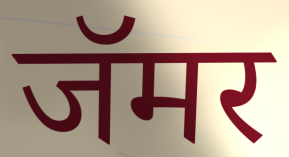
जॅमर